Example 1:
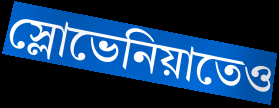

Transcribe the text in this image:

স্লোভেনিয়াতেও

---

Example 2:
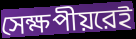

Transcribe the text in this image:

সেক্ষপীয়রেই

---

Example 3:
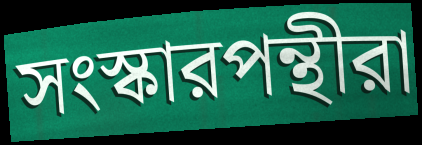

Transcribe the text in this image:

সংস্কারপন্থীরা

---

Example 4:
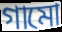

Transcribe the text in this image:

গামো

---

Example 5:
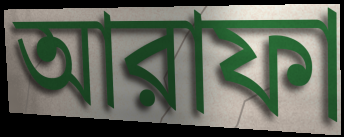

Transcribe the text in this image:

আরাফা